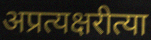
अप्रत्यक्षरीत्या